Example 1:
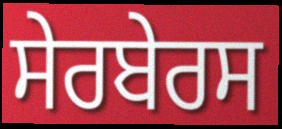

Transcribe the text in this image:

ਸੇਰਬੇਰਸ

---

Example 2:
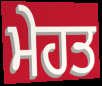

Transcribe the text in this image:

ਮੇਹਤ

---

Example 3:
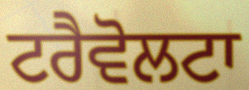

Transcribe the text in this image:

ਟਰੈਵੋਲਟਾ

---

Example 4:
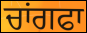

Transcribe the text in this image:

ਚਾਂਗਫਾ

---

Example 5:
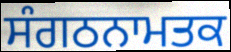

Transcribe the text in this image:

ਸੰਗਠਨਾਮਤਕ